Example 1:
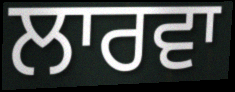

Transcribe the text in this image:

ਲਾਰਵਾ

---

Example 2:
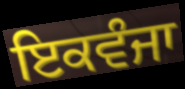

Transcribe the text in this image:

ਇਕਵੰਜਾ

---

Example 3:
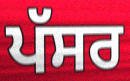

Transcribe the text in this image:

ਪੱਸਰ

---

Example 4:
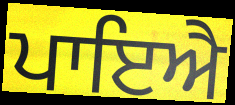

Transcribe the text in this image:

ਪਾਇਐ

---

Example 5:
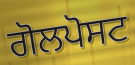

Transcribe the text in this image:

ਗੋਲਪੋਸਟ